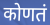
कोणतं